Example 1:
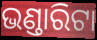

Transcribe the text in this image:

ଭଣ୍ଡାରିଟା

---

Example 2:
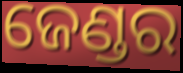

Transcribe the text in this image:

ଜେଣ୍ଡର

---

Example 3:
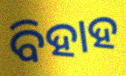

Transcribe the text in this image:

ବିହାହ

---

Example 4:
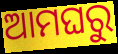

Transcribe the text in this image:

ଆମଘରୁ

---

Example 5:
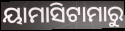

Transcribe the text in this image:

ୟାମାସିଟାମାରୁ